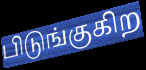
பிடுங்குகிற